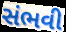
સંભવી